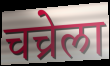
चच्रेला